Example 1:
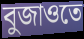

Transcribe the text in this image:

বুজাওতে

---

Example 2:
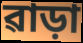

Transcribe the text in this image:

ৱাড়া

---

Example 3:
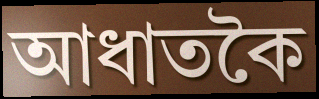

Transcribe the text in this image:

আধাতকৈ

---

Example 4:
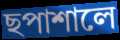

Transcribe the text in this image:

ছপাশালে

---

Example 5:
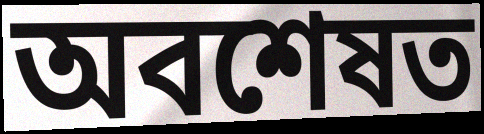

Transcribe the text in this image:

অবশেষত